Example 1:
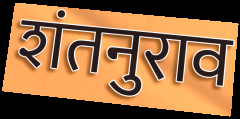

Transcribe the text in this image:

शंतनुराव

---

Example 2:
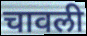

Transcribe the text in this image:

चावली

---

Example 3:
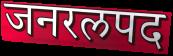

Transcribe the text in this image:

जनरलपद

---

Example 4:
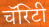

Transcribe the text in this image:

चॅरिटी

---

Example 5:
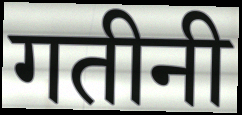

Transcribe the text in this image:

गतीनी